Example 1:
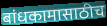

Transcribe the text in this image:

बांधकामासाठीच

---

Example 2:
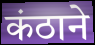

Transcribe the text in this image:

कंठाने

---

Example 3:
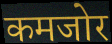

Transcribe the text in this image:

कमजोर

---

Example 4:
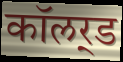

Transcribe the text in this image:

कॉलर्ड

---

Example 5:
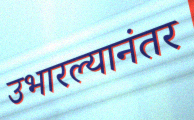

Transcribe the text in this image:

उभारल्यानंतर